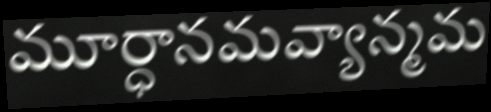
మూర్ధానమవ్యాన్మమ